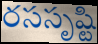
రససృష్టి